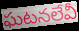
ఘటనలేవీ